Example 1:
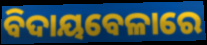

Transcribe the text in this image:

ବିଦାୟବେଳାରେ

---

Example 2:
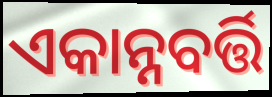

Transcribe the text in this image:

ଏକାନ୍ନବର୍ତ୍ତି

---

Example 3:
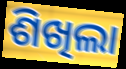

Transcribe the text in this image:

ଶିଖିଲା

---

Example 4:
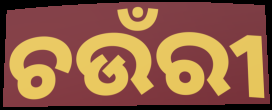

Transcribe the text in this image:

ଚଉଁରୀ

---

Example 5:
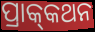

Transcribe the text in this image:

ପ୍ରାକ୍‌କଥନ